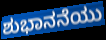
ಶುಭಾನನೆಯು